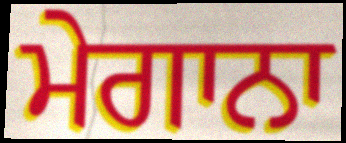
ਮੇਗਾਨਾ